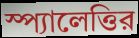
স্প্যালেত্তির